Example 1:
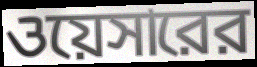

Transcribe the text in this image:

ওয়েসারের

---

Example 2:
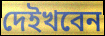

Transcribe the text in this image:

দেইখবেন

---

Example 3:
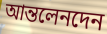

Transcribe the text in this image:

আন্তলেনদেন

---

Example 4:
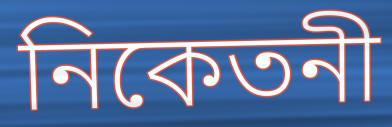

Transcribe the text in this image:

নিকেতনী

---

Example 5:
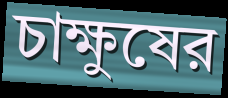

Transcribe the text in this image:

চাক্ষুষের